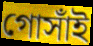
গোসাঁই